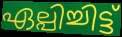
ഏല്പിച്ചിട്ട്